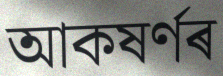
আকষৰ্ণৰ